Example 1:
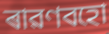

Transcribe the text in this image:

ৰাৱণবহো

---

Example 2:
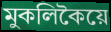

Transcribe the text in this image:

মুকলিকৈয়ে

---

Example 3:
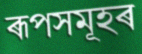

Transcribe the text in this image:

ৰূপসমূহৰ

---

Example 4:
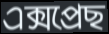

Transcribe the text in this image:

এক্সপ্ৰেছ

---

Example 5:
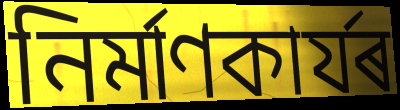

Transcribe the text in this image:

নিৰ্মাণকাৰ্যৰ